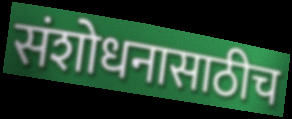
संशोधनासाठीच